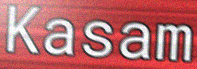
Kasam